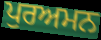
ਪੁਰਅਮਨ